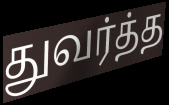
துவர்த்த